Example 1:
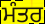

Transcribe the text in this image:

ਮੰਤਰ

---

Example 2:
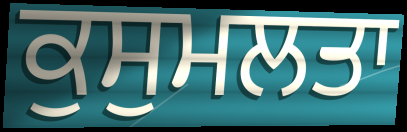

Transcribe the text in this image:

ਕੁਸੁਮਲਤਾ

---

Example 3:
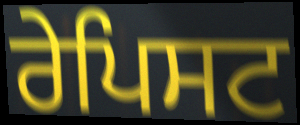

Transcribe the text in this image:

ਰੇਪਿਸਟ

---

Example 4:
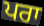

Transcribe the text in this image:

ਪਰਾ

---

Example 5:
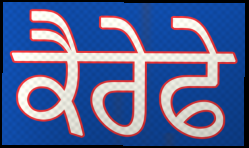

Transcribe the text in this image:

ਕੈਰੇਫੇ